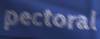
pectoral